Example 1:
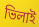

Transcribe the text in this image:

ভিলাই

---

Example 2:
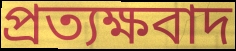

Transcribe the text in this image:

প্রত্যক্ষবাদ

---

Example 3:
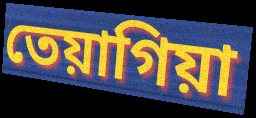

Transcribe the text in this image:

তেয়াগিয়া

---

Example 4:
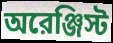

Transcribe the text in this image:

অরেঞ্জিস্ট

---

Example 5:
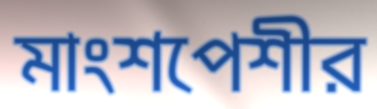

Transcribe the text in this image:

মাংশপেশীর